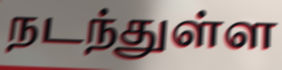
நடந்துள்ள